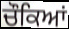
ਚੌਕਿਆਂ